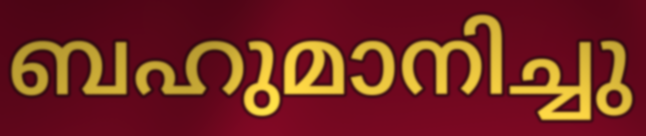
ബഹുമാനിച്ചു